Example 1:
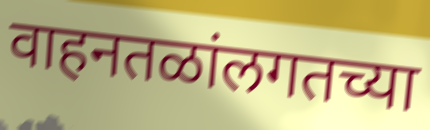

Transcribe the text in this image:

वाहनतळांलगतच्या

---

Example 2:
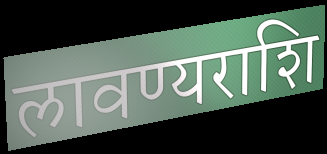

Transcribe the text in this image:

लावण्यराशि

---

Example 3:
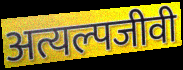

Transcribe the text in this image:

अत्यल्पजीवी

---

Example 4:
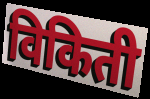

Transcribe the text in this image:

विकिती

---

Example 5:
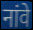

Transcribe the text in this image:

नांवे